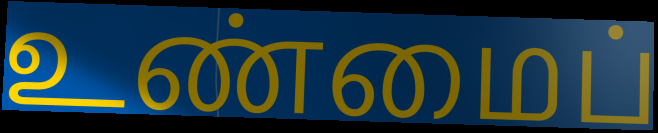
உண்மைப்